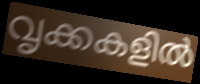
വൃക്കകളിൽ